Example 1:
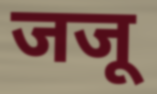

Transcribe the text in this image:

जजू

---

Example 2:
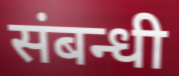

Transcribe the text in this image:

संबन्धी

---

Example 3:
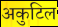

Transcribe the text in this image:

अकुटिल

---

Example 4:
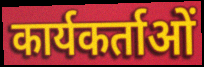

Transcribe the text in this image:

कार्यकर्ताओं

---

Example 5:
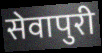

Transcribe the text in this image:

सेवापुरी